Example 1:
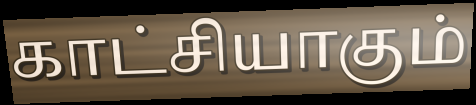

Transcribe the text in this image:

காட்சியாகும்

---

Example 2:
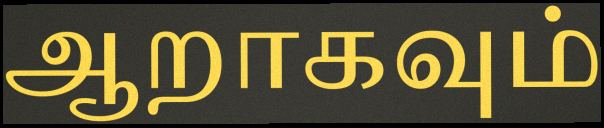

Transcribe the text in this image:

ஆறாகவும்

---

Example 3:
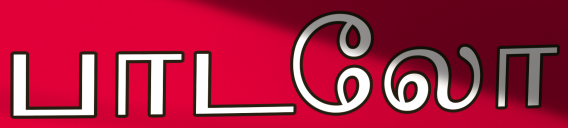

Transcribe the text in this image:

பாடலோ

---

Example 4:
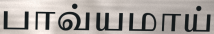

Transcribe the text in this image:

பாவ்யமாய்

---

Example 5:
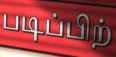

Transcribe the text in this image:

படிப்பிற்